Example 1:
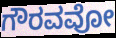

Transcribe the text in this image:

ಗೌರವವೋ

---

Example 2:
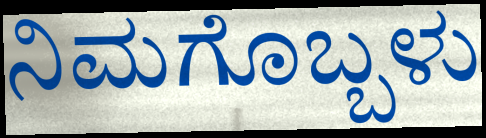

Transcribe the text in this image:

ನಿಮಗೊಬ್ಬಳು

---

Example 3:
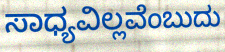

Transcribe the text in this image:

ಸಾಧ್ಯವಿಲ್ಲವೆಂಬುದು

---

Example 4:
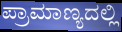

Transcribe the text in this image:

ಪ್ರಾಮಾಣ್ಯದಲ್ಲಿ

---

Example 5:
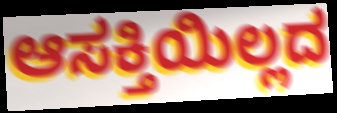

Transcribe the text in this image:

ಆಸಕ್ತಿಯಿಲ್ಲದ